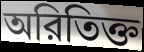
অরিতিক্ত